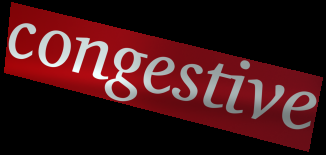
congestive